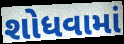
શોધવામાં